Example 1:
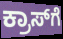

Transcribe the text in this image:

ಕ್ರಾಸ್‌ಗೆ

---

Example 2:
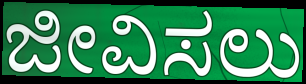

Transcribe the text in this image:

ಜೀವಿಸಲು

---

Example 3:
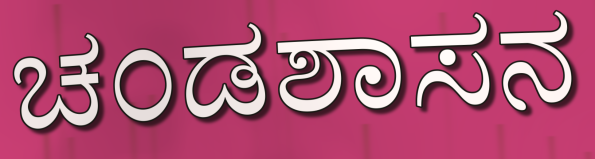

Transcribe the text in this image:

ಚಂಡಶಾಸನ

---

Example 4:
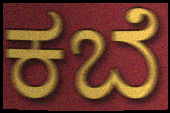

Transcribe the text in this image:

ಕಬೆ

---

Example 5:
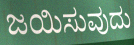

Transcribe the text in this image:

ಜಯಿಸುವುದು